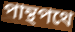
পান্থপথে